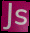
Js